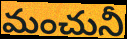
మంచునీ